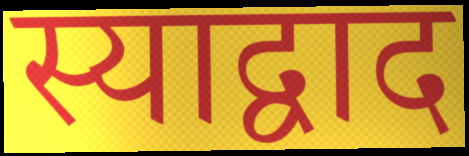
स्याद्वाद